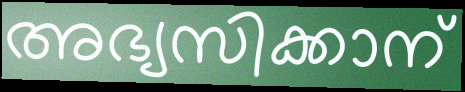
അഭ്യസിക്കാന്